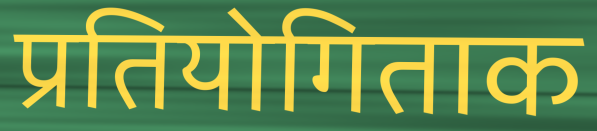
प्रतियोगिताक